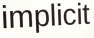
implicit